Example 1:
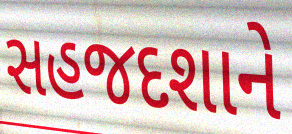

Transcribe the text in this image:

સહજદશાને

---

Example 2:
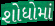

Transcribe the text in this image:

શોધોમાં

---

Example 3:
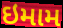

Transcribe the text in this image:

ઇમામ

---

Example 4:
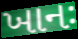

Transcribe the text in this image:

ખાનઃ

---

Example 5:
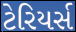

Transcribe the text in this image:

ટેરિયર્સ